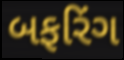
બફરિંગ